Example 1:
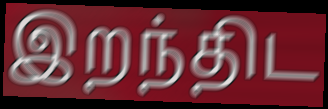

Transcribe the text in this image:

இறந்திட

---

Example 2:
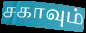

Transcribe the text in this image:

சகாவும்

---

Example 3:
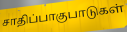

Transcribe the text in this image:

சாதிப்பாகுபாடுகள்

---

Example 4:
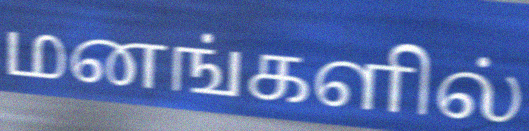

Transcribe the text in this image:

மனங்களில்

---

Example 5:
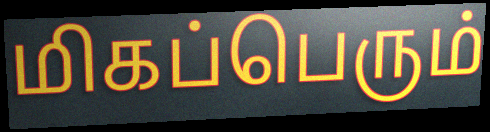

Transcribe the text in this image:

மிகப்பெரும்